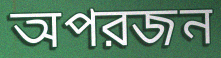
অপরজন